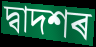
দ্বাদশৰ